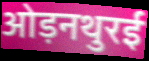
ओड़नथुरई